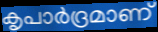
കൃപാർദ്രമാണ്